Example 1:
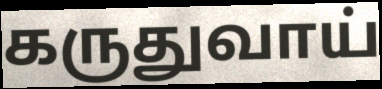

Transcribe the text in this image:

கருதுவாய்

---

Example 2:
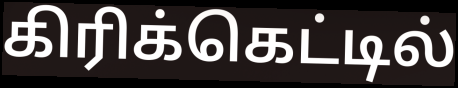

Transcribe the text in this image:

கிரிக்கெட்டில்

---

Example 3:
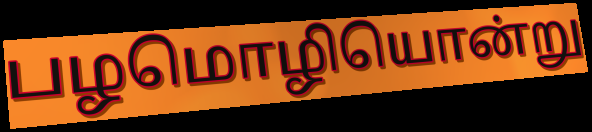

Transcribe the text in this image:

பழமொழியொன்று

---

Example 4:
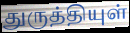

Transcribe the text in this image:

துருத்தியுள்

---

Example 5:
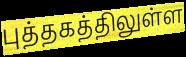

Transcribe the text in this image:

புத்தகத்திலுள்ள